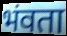
भंवता